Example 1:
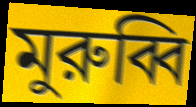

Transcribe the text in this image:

মুরুব্বি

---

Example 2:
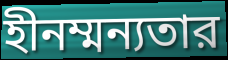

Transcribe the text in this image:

হীনম্মন্যতার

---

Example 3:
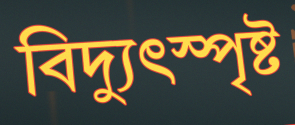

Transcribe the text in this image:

বিদ্যুৎস্পৃষ্ট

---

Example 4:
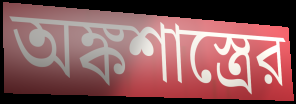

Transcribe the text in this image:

অঙ্কশাস্ত্রের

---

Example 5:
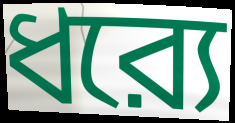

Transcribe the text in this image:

ধর‍্যে